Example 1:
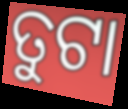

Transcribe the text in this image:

ତୁଟା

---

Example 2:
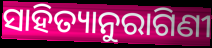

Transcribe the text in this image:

ସାହିତ୍ୟାନୁରାଗିଣୀ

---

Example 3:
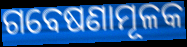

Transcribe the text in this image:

ଗବେଷଣାମୂଳକ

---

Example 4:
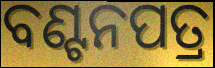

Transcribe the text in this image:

ବଣ୍ଟନପତ୍ର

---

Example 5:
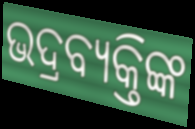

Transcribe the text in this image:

ଭଦ୍ରବ୍ୟକ୍ତିଙ୍କ